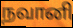
நவானி